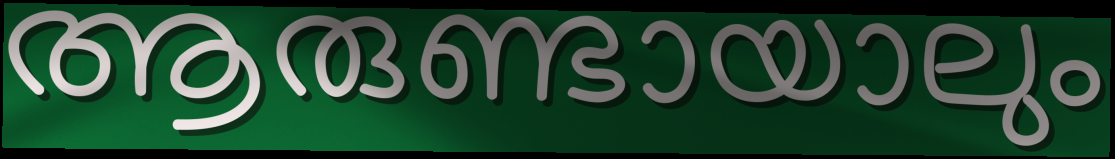
ആരുണ്ടായാലും